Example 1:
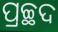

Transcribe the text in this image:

ପ୍ରଚ୍ଛଦ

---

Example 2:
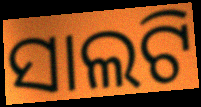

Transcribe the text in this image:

ସାଲଟି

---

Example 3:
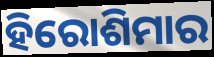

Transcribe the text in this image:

ହିରୋଶିମାର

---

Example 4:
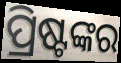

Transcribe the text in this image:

ପ୍ରିଷ୍ଟଙ୍କର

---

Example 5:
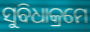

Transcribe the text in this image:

ସୁବିଧାକ୍ରମେ